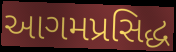
આગમપ્રસિદ્ધ